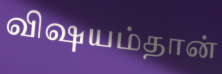
விஷயம்தான்